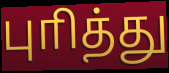
புரித்து